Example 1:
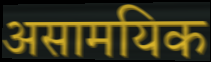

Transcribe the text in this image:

असामयिक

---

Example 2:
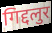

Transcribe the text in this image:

गिद्दलुर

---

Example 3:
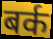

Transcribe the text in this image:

बर्क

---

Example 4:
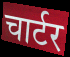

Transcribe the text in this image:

चार्टर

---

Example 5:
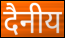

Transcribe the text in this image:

दैनीय